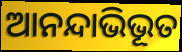
ଆନନ୍ଦାଭିଭୂତ